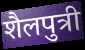
शैलपुत्री